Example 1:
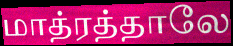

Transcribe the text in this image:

மாத்ரத்தாலே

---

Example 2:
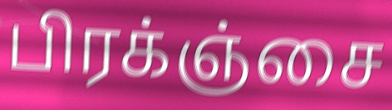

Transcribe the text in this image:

பிரக்ஞ்சை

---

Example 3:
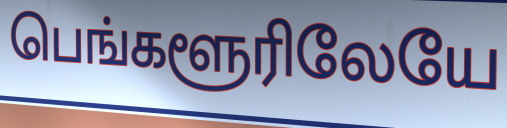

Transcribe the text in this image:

பெங்களூரிலேயே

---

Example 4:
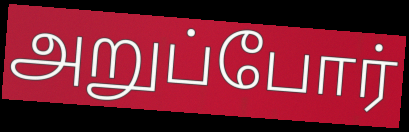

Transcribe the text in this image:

அறுப்போர்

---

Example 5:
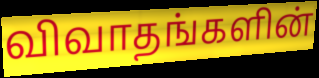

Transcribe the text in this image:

விவாதங்களின்